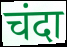
चंदा